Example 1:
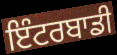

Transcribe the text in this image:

ਇੰਟਰਬਾਡੀ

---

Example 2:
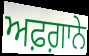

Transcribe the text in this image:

ਅਫ਼ਗ਼ਾਨੇ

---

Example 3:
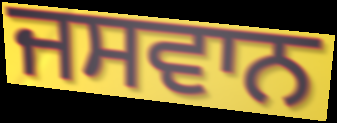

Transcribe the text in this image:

ਜਸਵਾਨ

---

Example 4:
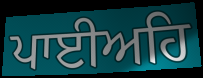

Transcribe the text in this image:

ਪਾਈਅਹਿ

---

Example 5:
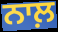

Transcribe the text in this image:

ਨਾਲ਼